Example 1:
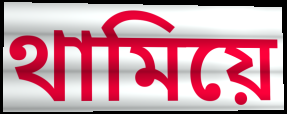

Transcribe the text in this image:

থামিয়ে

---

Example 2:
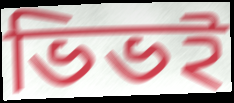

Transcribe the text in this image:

ভিভই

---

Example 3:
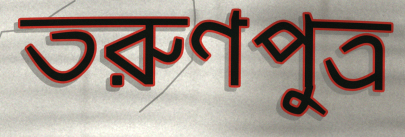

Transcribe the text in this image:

তরুণপুত্র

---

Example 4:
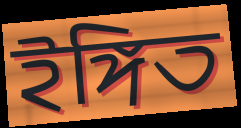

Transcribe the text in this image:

ইঙ্গিত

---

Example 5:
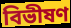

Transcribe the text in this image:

বিভীষণ